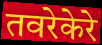
तवरेकेरे